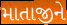
માતાજીને